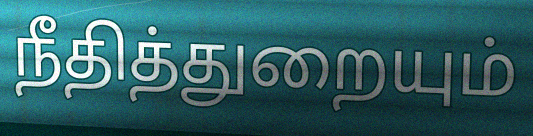
நீதித்துறையும்